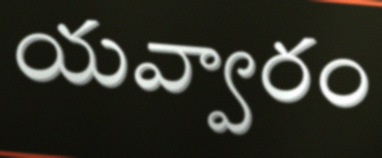
యవ్వారం